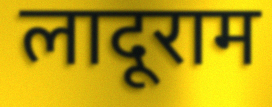
लादूराम